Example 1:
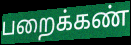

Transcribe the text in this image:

பறைக்கண்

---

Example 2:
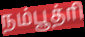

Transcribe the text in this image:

நம்பூத்ரி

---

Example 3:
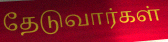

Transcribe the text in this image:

தேடுவார்கள்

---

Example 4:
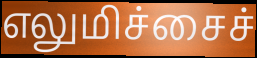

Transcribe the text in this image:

எலுமிச்சைச்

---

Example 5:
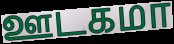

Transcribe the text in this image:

ஊடகமா